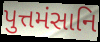
પુત્તમંસાનિ